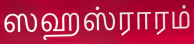
ஸஹஸ்ராரம்